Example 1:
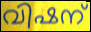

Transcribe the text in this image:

വിഷന്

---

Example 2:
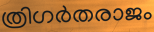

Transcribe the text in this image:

ത്രിഗർതരാജം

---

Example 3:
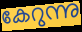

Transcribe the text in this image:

കേറുന്നു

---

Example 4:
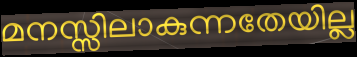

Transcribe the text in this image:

മനസ്സിലാകുന്നതേയില്ല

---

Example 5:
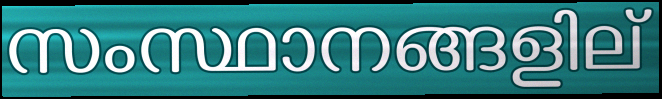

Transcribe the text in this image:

സംസ്ഥാനങ്ങളില്